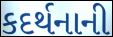
કદર્થનાની